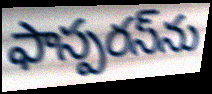
ఫాస్పరస్‌ను